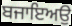
ਬਜਾਇਅਉ